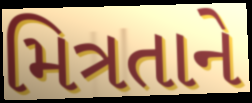
મિત્રતાને